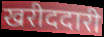
खरीददारी